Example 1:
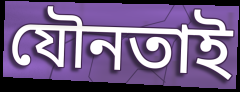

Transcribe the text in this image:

যৌনতাই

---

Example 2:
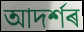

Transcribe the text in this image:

আদৰ্শৰ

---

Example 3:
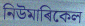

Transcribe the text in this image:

নিউমাৰিকেল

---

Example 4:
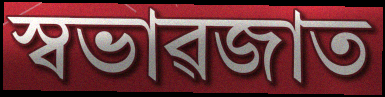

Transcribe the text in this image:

স্বভাৱজাত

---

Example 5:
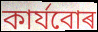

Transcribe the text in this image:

কাৰ্যবোৰ